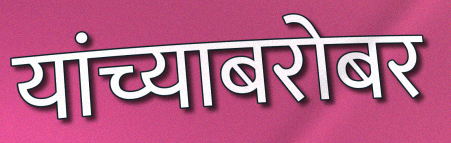
यांच्याबरोबर